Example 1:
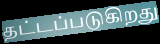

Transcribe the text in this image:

தட்டப்படுகிறது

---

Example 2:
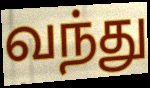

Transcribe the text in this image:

வந்து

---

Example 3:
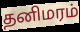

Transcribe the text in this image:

தனிமரம்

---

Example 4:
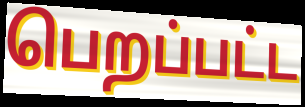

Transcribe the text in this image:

பெறப்பட்ட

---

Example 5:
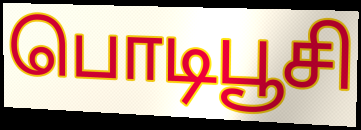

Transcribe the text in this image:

பொடிபூசி